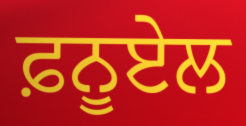
ਫ਼ਨੂਏਲ